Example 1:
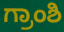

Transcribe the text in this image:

ಗ್ರಾಂಶಿ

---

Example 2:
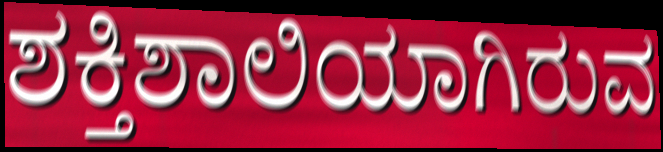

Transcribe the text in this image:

ಶಕ್ತಿಶಾಲಿಯಾಗಿರುವ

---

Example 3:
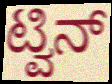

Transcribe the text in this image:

ಟ್ವಿನ್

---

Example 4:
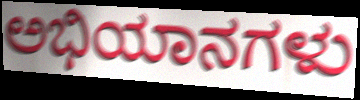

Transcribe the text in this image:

ಅಭಿಯಾನಗಳು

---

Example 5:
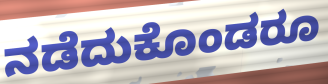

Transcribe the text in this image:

ನಡೆದುಕೊಂಡರೂ